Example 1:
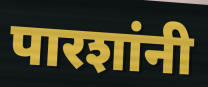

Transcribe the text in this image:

पारशांनी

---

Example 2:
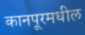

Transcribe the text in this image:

कानपूरमधील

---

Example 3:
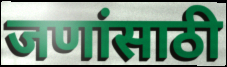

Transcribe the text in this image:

जणांसाठी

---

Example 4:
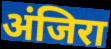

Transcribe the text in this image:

अंजिरा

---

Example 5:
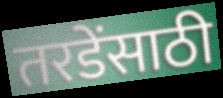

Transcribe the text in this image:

तरडेंसाठी